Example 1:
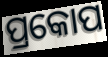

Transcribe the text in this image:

ପ୍ରକୋପ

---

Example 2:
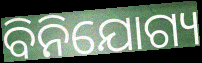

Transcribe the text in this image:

ବିନିଯୋଗ୍ୟ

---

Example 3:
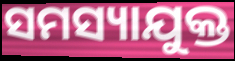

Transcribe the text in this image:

ସମସ୍ୟାଯୁକ୍ତ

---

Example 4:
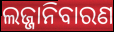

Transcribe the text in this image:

ଲଜ୍ଜାନିବାରଣ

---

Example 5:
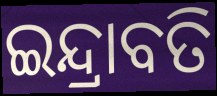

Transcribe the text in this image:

ଇନ୍ଦ୍ରାବତି